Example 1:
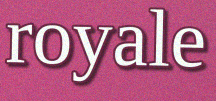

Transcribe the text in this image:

royale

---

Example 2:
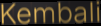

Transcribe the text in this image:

Kembali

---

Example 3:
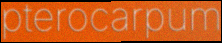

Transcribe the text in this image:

pterocarpum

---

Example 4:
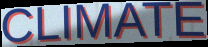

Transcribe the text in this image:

CLIMATE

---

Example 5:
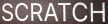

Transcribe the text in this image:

SCRATCH